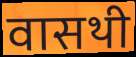
वासथी